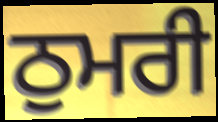
ਠੁਮਰੀ